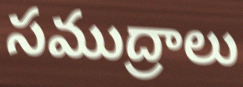
సముద్రాలు